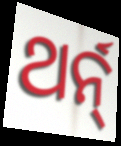
ଥର୍ନ୍